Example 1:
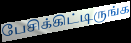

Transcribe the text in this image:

பேசிக்கிட்டிருங்க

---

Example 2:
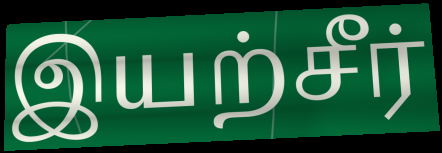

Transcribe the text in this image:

இயற்சீர்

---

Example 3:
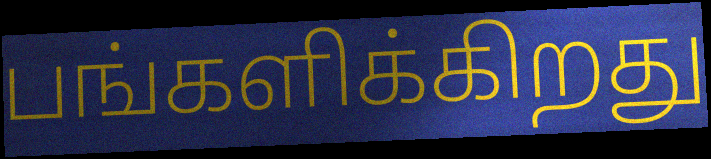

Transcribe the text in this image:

பங்களிக்கிறது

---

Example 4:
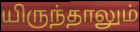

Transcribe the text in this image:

யிருந்தாலும்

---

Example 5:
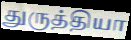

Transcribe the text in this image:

துருத்தியா